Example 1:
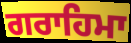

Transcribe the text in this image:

ਗਰਾਹਿਮਾ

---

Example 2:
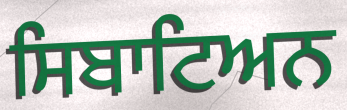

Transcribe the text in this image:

ਸਿਬਾਟਿਅਨ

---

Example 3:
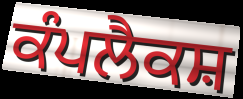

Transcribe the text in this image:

ਕੰਪਲੈਕਸ਼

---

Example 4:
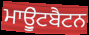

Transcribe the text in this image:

ਮਾਉੂਂਟਬੈਟਨ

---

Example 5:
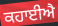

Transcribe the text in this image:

ਕਹਾਈਐ